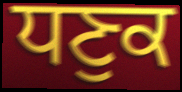
ਧਣੁਕ